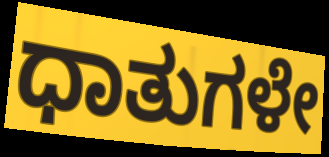
ಧಾತುಗಳೇ